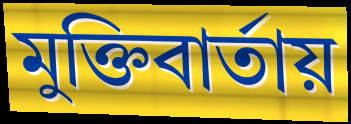
মুক্তিবার্তায়